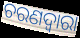
ଚରଣଦ୍ୱାରା